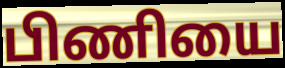
பிணியை